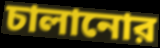
চালানোর